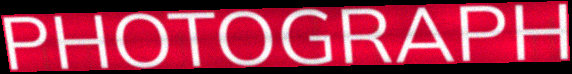
PHOTOGRAPH